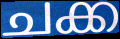
ചക്ക